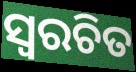
ସ୍ୱରଚିତ